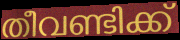
തീവണ്ടിക്ക്